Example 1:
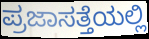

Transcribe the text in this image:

ಪ್ರಜಾಸತ್ತೆಯಲ್ಲಿ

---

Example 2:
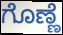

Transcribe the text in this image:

ಗೊಣ್ಣೆ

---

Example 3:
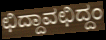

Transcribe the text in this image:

ಛಿದ್ದಾವಛಿದ್ದಂ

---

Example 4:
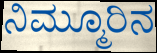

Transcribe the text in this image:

ನಿಮ್ಮೂರಿನ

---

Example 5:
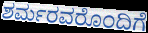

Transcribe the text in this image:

ಶರ್ಮರವರೊಂದಿಗೆ